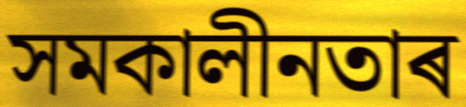
সমকালীনতাৰ